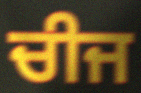
ਚੀਜ